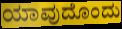
ಯಾವುದೊಂದು